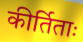
कीर्तिताः